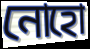
নোহো